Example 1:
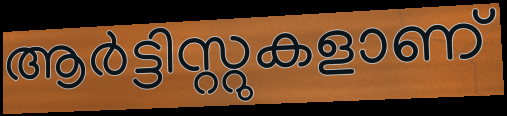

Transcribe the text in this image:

ആർട്ടിസ്റ്റുകളാണ്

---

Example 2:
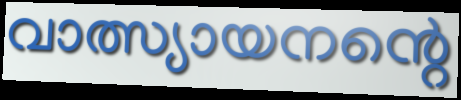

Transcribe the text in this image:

വാത്സ്യായനന്റെ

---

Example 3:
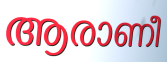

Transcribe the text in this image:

ആരാണീ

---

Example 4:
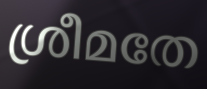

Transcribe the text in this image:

ശ്രീമതേ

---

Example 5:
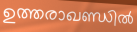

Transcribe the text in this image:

ഉത്തരാഖണ്ഡിൽ